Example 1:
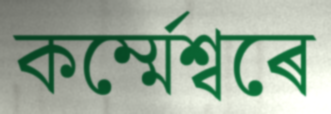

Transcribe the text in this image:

কৰ্ম্মেশ্বৰে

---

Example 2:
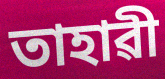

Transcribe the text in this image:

তাহাৱী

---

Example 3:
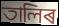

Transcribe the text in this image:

তালিৰ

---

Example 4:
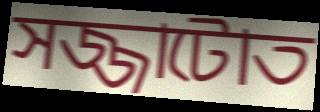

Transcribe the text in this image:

সজ্জাটোত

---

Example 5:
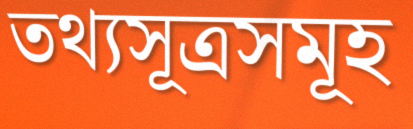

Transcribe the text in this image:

তথ্যসূত্ৰসমূহ